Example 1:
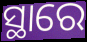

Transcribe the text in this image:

ସ୍ଥାରେ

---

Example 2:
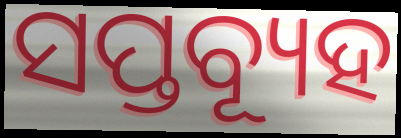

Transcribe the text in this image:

ସପ୍ତବ୍ୟୂହ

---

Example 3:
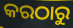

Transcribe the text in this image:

କରଠାରୁ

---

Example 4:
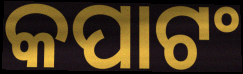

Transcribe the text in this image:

କପାଟଂ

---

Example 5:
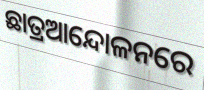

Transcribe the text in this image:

ଛାତ୍ରଆନ୍ଦୋଳନରେ